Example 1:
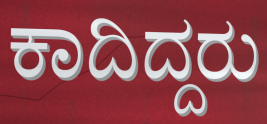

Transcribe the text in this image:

ಕಾದಿದ್ದರು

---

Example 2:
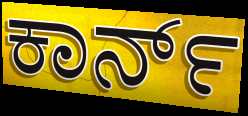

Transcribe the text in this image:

ಕಾರ್ನ್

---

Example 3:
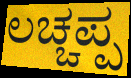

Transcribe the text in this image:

ಲಚ್ಚಪ್ಪ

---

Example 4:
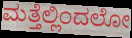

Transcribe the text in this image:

ಮತ್ತೆಲ್ಲಿಂದಲೋ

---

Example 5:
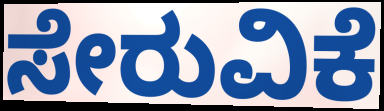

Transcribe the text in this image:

ಸೇರುವಿಕೆ